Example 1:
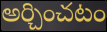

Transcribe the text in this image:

అర్చించటం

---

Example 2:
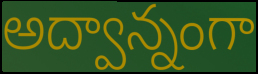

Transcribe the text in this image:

అద్వాన్నంగా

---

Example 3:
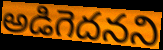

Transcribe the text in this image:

అడిగెదనని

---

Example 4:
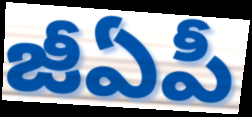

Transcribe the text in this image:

జీఏపీ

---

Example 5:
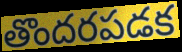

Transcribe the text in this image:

తొందరపడక